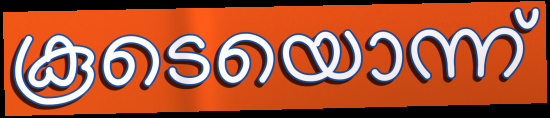
കൂടെയൊന്ന്